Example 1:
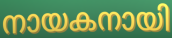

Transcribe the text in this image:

നായകനായി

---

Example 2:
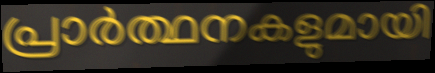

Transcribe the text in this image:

പ്രാർത്ഥനകളുമായി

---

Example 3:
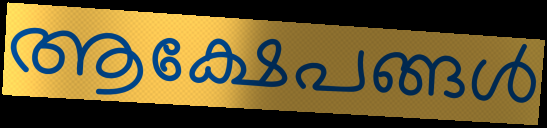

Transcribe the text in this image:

ആക്ഷേപങ്ങൾ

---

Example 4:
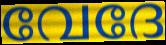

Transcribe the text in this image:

വേദേ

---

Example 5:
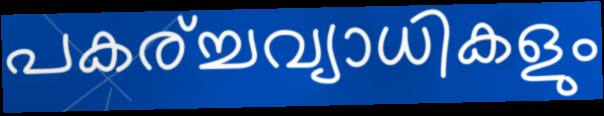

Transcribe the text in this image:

പകര്ച്ചവ്യാധികളും